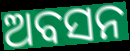
ଅବସନ